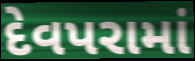
દેવપરામાં